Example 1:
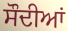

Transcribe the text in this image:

ਸੌਦੀਆਂ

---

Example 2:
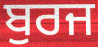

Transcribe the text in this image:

ਬੁਰਜ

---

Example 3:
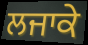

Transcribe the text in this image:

ਲਜਾਕੇ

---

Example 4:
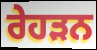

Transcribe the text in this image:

ਰੇਹੜਨ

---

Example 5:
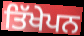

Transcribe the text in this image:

ਤਿੱਖੇਪਨ